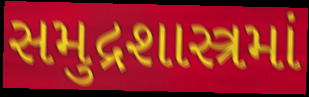
સમુદ્રશાસ્ત્રમાં